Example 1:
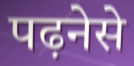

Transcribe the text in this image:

पढ़नेसे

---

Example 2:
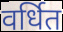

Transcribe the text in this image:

वर्धित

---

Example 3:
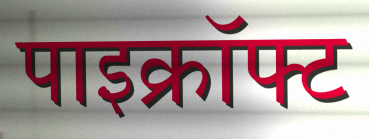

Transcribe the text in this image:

पाइक्रॉफ्ट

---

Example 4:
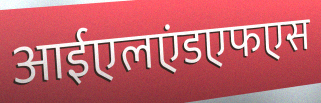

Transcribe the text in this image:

आईएलएंडएफएस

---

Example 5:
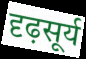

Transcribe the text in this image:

दृढ़सूर्य